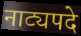
नाट्यपदे